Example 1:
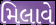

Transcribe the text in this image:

મિલાવે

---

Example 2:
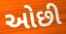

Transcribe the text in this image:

ઓછી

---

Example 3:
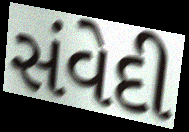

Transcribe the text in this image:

સંવેદી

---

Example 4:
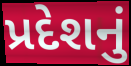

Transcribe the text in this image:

પ્રદેશનું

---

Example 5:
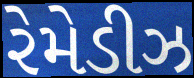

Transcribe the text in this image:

રેમેડીઝ